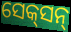
ସେକ୍‌ସନ୍